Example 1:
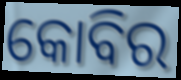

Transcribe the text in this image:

କୋବିର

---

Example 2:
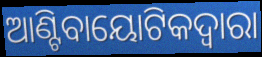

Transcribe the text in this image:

ଆଣ୍ଟିବାୟୋଟିକଦ୍ୱାରା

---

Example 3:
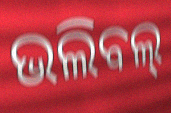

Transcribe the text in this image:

ଭଲିବଲ୍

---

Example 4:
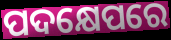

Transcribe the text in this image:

ପଦକ୍ଷେପରେ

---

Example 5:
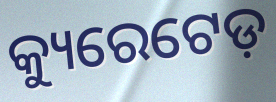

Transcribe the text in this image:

କ୍ୟୁରେଟେଡ଼